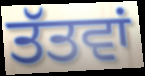
ਤੱਤਵਾਂ